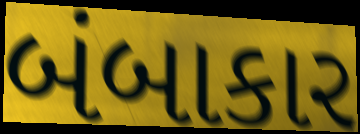
બંબાકાર